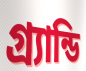
গ্র্যান্ডি